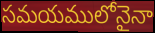
సమయములోనైనా